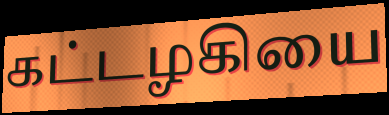
கட்டழகியை